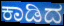
ಕಾಡಿದ